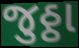
જુઠ્ઠા